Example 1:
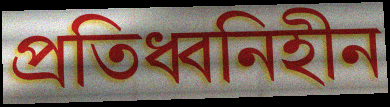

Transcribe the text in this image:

প্রতিধ্বনিহীন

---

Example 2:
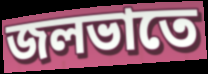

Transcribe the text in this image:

জলভাতে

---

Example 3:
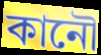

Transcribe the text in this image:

কানৌ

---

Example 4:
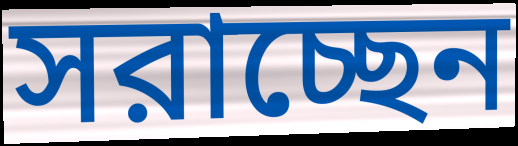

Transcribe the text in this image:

সরাচ্ছেন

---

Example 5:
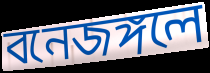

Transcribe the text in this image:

বনেজঙ্গলে